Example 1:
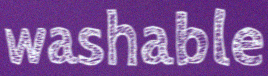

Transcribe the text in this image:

washable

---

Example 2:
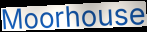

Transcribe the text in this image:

Moorhouse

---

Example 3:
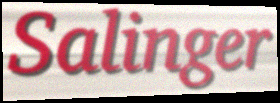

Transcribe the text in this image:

Salinger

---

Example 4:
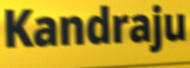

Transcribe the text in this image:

Kandraju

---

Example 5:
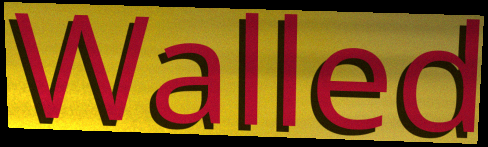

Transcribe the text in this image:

Walled